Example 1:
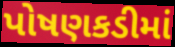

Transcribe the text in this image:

પોષણકડીમાં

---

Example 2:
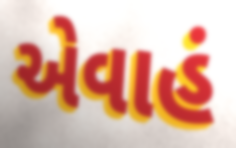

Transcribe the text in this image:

એવાહં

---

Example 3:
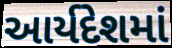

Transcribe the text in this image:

આર્યદેશમાં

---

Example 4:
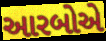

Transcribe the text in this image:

આરબોએ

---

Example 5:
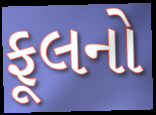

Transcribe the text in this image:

ફૂલનો